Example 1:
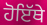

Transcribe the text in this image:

ਹੋਇੱਥੇ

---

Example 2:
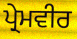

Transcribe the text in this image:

ਪ੍ਰੇਮਵੀਰ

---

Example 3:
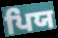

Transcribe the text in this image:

ਪਿਯ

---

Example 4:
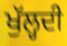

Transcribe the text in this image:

ਖੁੱਲ੍ਹਦੀ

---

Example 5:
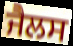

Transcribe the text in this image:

ਜੈਲਸ